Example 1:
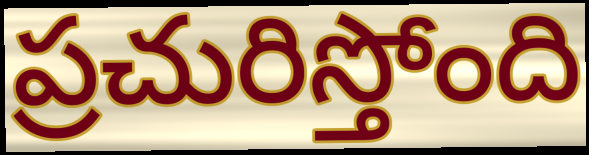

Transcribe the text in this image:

ప్రచురిస్తోంది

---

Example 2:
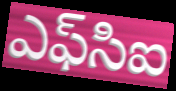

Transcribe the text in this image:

ఎఫ్‌సిఐ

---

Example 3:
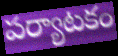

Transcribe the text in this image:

పర్యాటకం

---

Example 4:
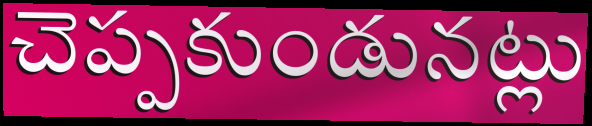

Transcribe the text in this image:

చెప్పకుండునట్లు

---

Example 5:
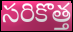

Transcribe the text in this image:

సరికొత్త